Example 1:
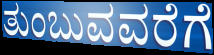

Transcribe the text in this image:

ತುಂಬುವವರೆಗೆ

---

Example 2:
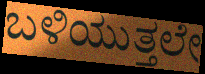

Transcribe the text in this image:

ಬಳಿಯುತ್ತಲೇ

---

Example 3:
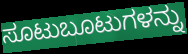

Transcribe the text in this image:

ಸೂಟುಬೂಟುಗಳನ್ನು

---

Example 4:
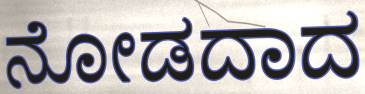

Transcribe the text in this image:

ನೋಡದಾದ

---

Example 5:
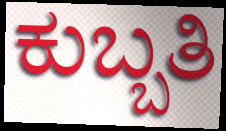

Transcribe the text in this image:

ಕುಬ್ಬತಿ